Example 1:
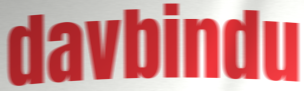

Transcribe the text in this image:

davbindu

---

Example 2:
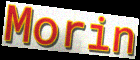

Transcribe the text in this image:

Morin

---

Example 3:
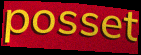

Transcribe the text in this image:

posset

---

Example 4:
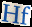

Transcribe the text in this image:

Hf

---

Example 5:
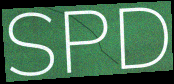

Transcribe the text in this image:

SPD